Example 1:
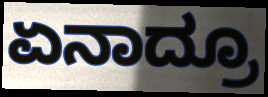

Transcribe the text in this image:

ಏನಾದ್ರೂ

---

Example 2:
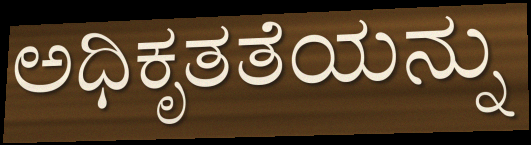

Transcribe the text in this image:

ಅಧಿಕೃತತೆಯನ್ನು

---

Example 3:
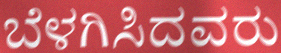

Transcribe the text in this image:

ಬೆಳಗಿಸಿದವರು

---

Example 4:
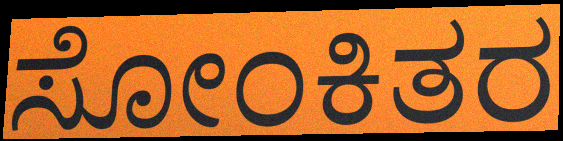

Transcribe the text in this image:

ಸೋಂಕಿತರ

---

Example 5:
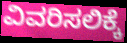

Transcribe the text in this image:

ವಿವರಿಸಲಿಕ್ಕೆ